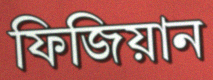
ফিজিয়ান